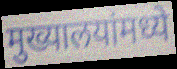
मुख्यालयांमध्ये